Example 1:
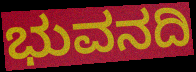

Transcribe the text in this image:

ಭುವನದಿ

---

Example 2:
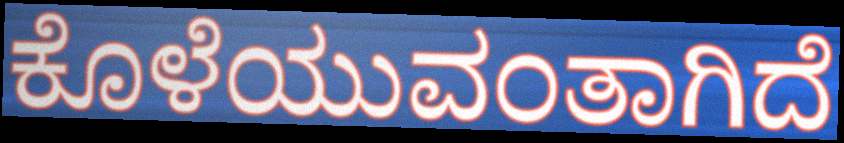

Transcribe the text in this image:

ಕೊಳೆಯುವಂತಾಗಿದೆ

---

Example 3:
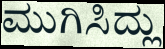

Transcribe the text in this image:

ಮುಗಿಸಿದ್ಲು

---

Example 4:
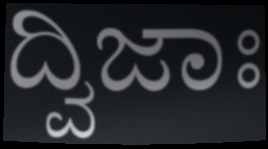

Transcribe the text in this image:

ದ್ವಿಜಾಃ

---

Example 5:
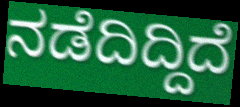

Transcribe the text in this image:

ನಡೆದಿದ್ದಿದೆ